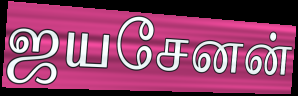
ஜயசேனன்